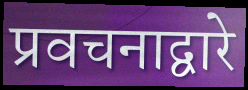
प्रवचनाद्वारे